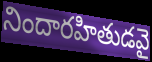
నిందారహితుడవై